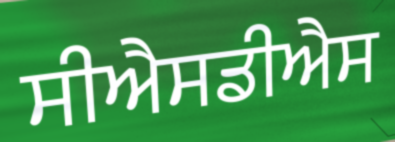
ਸੀਐਸਡੀਐਸ